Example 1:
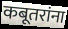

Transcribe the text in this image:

कबूतरांना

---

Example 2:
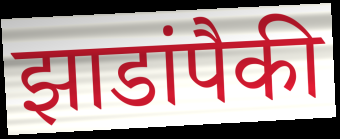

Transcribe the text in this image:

झाडांपैकी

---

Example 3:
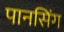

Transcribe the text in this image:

पानसिंग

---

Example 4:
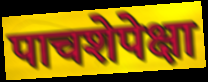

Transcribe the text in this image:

पाचशेपेक्षा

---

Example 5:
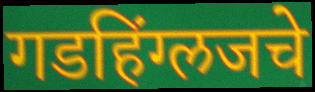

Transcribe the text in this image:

गडहिंग्लजचे